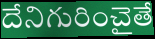
దేనిగురించైతే